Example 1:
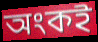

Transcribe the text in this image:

অংকই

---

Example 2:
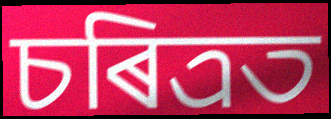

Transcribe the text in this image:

চৰিত্ৰত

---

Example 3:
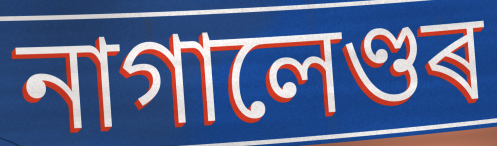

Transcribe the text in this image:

নাগালেণ্ডৰ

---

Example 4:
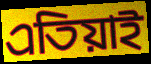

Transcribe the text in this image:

এতিয়াই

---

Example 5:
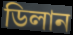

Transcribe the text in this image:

ডিলান